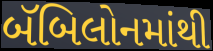
બૅબિલોનમાંથી